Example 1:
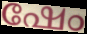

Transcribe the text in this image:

ഷേം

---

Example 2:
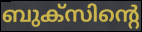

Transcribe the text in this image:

ബുക്സിന്റെ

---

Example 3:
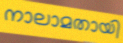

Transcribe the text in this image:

നാലാമതായി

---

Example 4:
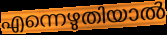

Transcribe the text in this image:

എന്നെഴുതിയാൽ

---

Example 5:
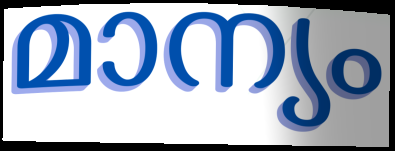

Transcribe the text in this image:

മാന്യം